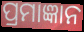
ପ୍ରମାଜ୍ଞାନ